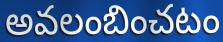
అవలంబించటం